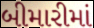
બીમારીમાં